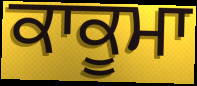
ਕਾਕੂਮਾ